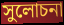
সুলোচনা